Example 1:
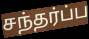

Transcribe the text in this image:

சந்தர்ப்ப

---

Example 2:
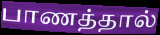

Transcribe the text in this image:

பாணத்தால்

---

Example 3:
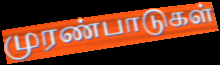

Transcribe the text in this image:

முரண்பாடுகள்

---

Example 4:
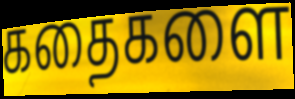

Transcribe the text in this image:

கதைகளை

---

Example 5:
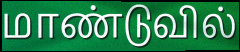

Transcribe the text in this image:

மாண்டுவில்